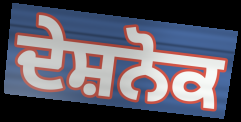
ਦੇਸ਼ਨੋਕ